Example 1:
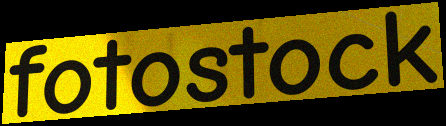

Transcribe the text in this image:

fotostock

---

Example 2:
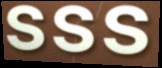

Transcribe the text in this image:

sss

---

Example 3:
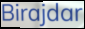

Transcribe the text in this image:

Birajdar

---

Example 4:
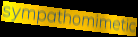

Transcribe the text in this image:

sympathomimetic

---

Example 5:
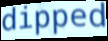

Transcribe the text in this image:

dipped